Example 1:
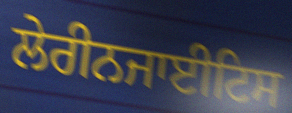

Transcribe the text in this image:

ਲੇਰੀਨਜਾਈਟਿਸ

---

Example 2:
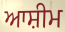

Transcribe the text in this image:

ਆਸ਼ੀਮ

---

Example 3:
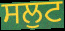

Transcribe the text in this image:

ਸਲੁਟ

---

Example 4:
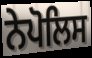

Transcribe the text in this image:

ਨੇਪੋਲਿਸ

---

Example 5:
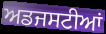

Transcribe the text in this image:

ਅਡਜਸਟੀਆਂ